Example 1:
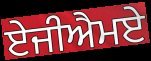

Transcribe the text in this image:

ਏਜੀਐਮਏ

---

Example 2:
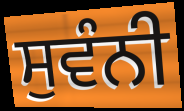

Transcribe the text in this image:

ਸੁਵੰਨੀ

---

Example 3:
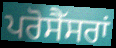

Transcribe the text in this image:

ਪਰੋਸੈੱਸਰਾਂ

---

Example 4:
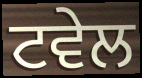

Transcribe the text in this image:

ਟਵੇਲ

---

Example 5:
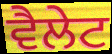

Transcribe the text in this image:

ਵੈਲੇਟ